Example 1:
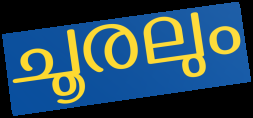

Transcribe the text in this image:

ചൂരലും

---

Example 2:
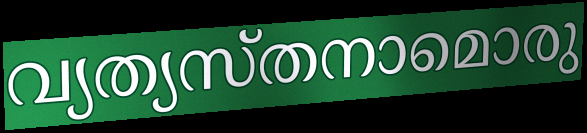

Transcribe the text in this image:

വ്യത്യസ്തനാമൊരു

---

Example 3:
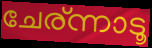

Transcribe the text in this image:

ചേര്ന്നാടൂ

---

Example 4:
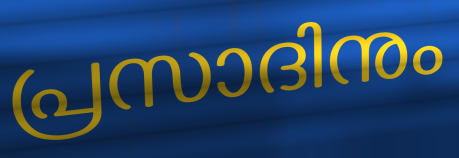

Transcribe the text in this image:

പ്രസാദിനും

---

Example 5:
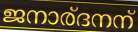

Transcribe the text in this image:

ജനാര്ദനന്